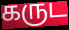
கருட